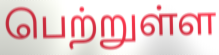
பெற்றுள்ள